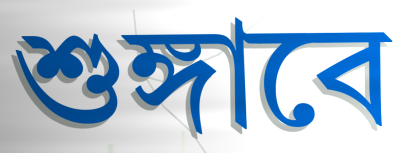
শুঙ্গাবে